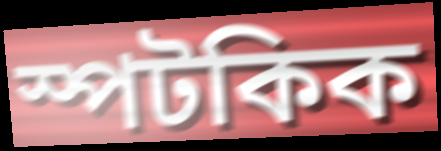
স্পটকিক